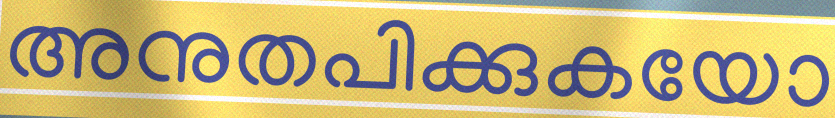
അനുതപിക്കുകയോ